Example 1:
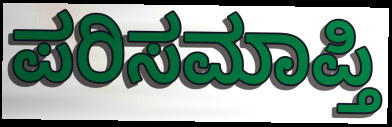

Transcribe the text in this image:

ಪರಿಸಮಾಪ್ತಿ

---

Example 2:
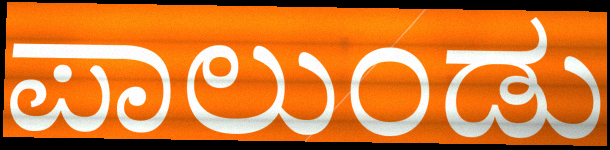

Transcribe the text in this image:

ಪಾಲುಂಡು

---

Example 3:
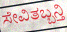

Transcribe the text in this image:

ಸೇವಿತಬ್ಬನ್ತಿ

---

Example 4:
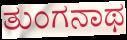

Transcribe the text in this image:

ತುಂಗನಾಥ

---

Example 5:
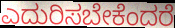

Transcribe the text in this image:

ಎದುರಿಸಬೇಕೆಂದರೆ